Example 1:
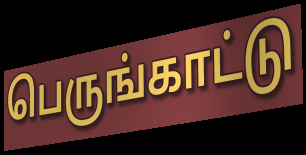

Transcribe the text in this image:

பெருங்காட்டு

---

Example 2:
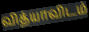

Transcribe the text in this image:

வித்யாவிடம்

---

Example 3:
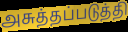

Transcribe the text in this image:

அசுத்தப்படுத்தி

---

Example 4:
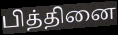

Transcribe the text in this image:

பித்தினை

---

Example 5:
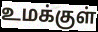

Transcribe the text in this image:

உமக்குள்